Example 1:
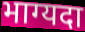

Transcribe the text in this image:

भाग्यदा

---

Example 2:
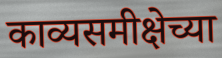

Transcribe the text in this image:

काव्यसमीक्षेच्या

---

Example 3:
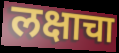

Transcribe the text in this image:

लक्षाचा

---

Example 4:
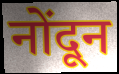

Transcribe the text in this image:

नोंदून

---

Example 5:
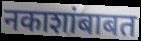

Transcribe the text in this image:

नकाशांबाबत